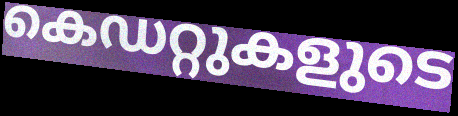
കെഡറ്റുകളുടെ